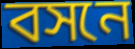
বসনে